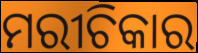
ମରୀଚିକାର